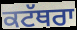
ਕਟੱਥਰਾ